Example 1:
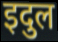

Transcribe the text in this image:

इदुल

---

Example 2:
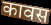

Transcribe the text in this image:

कावस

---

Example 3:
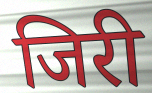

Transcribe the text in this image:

जिरी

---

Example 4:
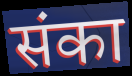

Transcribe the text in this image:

संका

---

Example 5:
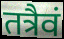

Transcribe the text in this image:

तत्रैवं